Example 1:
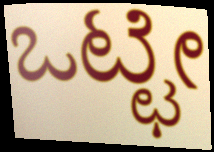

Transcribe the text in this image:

ಒಟ್ಟೇ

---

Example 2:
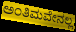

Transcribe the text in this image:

ಅಂತಿಮವೇನಲ್ಲ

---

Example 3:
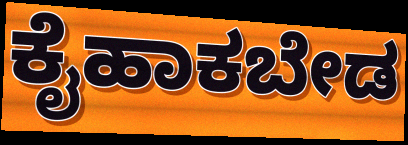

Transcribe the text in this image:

ಕೈಹಾಕಬೇಡ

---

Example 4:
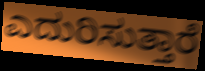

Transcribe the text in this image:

ಎದುರಿಸುತ್ತಾರೆ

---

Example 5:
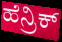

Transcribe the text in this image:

ಹೆನ್ರಿಕ್